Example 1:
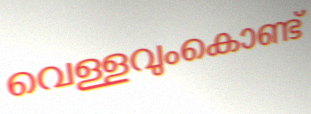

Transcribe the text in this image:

വെള്ളവുംകൊണ്ട്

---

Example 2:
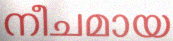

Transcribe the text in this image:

നീചമായ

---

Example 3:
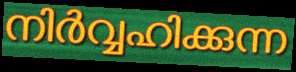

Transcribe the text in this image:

നിർവ്വഹിക്കുന്ന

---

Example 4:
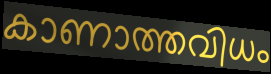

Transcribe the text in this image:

കാണാത്തവിധം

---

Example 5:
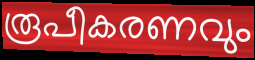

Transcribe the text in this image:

രൂപീകരണവും